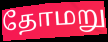
தோமறு